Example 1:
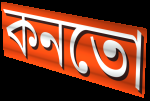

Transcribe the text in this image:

কনতো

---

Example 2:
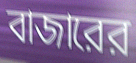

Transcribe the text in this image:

বাজারের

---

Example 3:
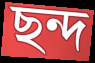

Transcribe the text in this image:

ছন্দ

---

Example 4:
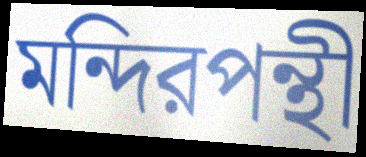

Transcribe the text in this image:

মন্দিরপন্থী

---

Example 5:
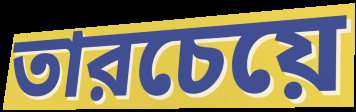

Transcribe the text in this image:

তারচেয়ে